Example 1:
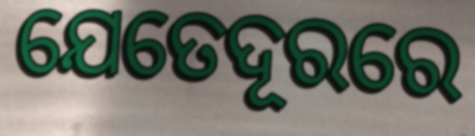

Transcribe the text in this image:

ଯେତେଦୂରରେ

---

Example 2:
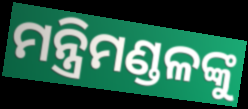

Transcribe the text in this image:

ମନ୍ତ୍ରିମଣ୍ଡଳଙ୍କୁ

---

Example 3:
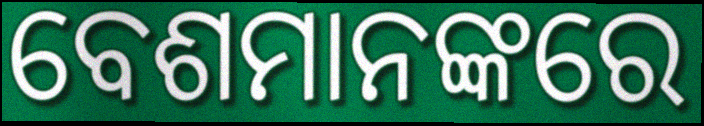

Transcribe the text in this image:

ବେଶମାନଙ୍କରେ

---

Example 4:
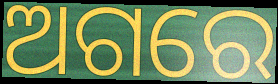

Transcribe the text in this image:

ଅଗରେ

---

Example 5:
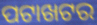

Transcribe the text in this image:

ପଟାଖଟର